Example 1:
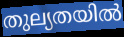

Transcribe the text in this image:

തുല്യതയിൽ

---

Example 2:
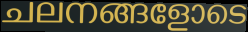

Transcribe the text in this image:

ചലനങ്ങളോടെ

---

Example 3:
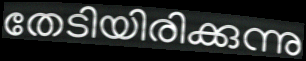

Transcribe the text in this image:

തേടിയിരിക്കുന്നു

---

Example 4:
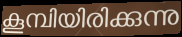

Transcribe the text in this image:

കൂമ്പിയിരിക്കുന്നു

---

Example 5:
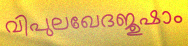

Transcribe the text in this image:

വിപുലഖേദജുഷാം